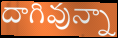
దాగివున్నా